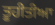
ਤੂਹੀਤੀਆ